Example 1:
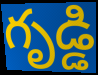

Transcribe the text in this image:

గృడ్డి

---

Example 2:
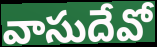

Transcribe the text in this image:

వాసుదేవో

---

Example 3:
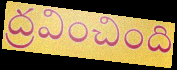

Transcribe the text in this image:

ద్రవించింది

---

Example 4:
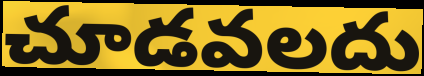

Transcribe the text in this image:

చూడవలదు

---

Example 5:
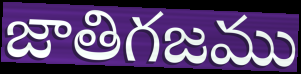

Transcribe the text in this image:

జాతిగజము